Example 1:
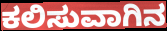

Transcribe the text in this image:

ಕಲಿಸುವಾಗಿನ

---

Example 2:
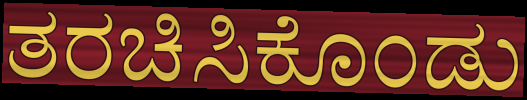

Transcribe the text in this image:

ತರಚಿಸಿಕೊಂಡು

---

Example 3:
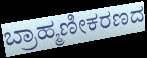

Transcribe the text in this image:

ಬ್ರಾಹ್ಮಣೀಕರಣದ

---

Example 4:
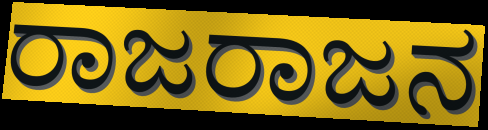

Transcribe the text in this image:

ರಾಜರಾಜನ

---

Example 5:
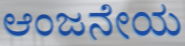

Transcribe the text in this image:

ಆಂಜನೇಯ